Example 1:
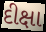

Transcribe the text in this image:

દીક્ષા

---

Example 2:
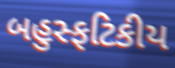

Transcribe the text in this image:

બહુસ્ફટિકીય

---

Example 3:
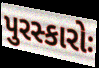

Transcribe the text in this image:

પુરસ્કારોઃ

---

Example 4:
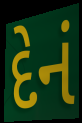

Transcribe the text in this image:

દેનં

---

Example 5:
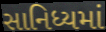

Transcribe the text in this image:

સાનિધ્યમાં